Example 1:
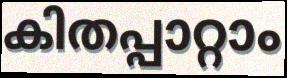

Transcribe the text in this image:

കിതപ്പാറ്റാം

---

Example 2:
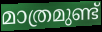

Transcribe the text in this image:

മാത്രമുണ്ട്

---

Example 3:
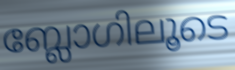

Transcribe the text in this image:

ബ്ലോഗിലൂടെ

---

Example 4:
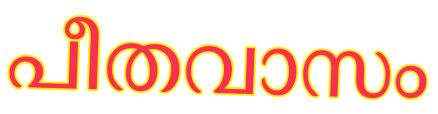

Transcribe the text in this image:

പീതവാസം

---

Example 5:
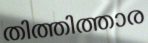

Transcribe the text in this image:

തിത്തിത്താര